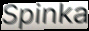
Spinka